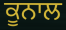
ਕੂਨਾਲ